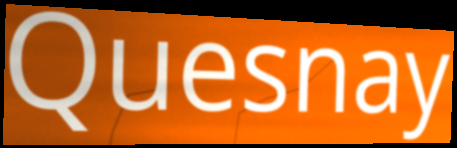
Quesnay